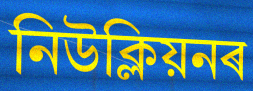
নিউক্লিয়নৰ